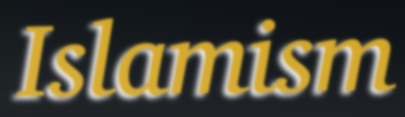
Islamism